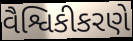
વૈશ્વિકીકરણે